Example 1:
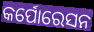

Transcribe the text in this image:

କର୍ପୋରେସନ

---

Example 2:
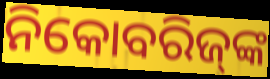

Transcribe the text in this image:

ନିକୋବରିଜ୍‍ଙ୍କ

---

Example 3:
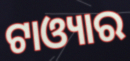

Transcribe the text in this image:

ଟାଓ୍ୟାର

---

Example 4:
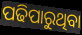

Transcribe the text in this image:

ପଢିପାରୁଥିବା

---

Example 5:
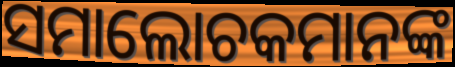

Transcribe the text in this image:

ସମାଲୋଚକମାନଙ୍କ